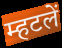
म्हटलें